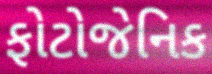
ફોટોજેનિક